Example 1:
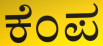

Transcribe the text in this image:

ಕೆಂಪ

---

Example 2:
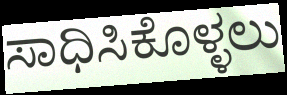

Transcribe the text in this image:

ಸಾಧಿಸಿಕೊಳ್ಳಲು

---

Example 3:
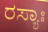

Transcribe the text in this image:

ರಸ್ಯಾಃ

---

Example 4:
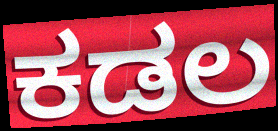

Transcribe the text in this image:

ಕಡಲ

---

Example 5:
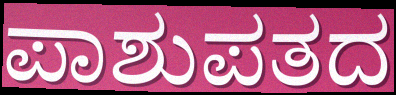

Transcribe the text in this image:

ಪಾಶುಪತದ